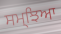
ਸਮ੍ਝਿਆ